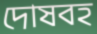
দোষবহ